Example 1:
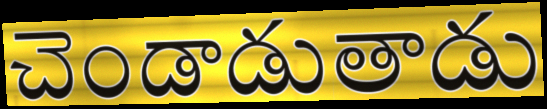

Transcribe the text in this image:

చెండాడుతాడు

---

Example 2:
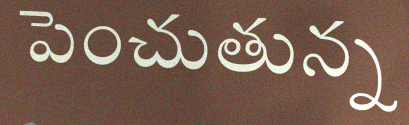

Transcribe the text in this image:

పెంచుతున్న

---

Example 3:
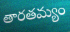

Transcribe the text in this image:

తారతమ్యం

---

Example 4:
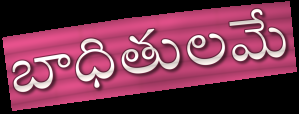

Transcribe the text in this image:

బాధితులమే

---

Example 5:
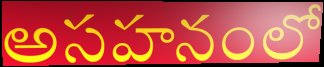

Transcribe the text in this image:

అసహనంలో